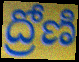
ద్రోణి